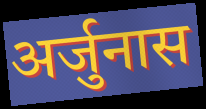
अर्जुनास